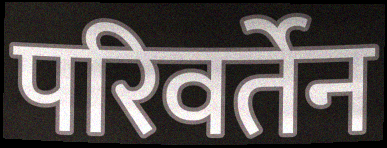
परिवर्तेन